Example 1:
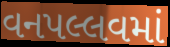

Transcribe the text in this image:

વનપલ્લવમાં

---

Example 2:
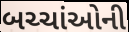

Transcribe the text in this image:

બચ્ચાંઓની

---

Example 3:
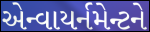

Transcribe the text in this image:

એન્વાયર્નમેન્ટને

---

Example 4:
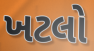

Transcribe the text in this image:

ખટલો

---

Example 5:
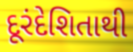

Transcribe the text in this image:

દૂરંદેશિતાથી